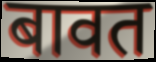
बावत